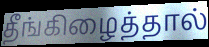
தீங்கிழைத்தால்